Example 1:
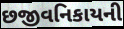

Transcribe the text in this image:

છજીવનિકાયની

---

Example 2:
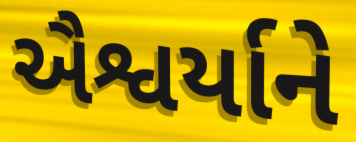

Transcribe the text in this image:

ઐશ્વર્યાને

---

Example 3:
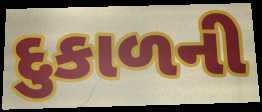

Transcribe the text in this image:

દુકાળની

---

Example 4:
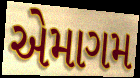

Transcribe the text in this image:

એમાગમ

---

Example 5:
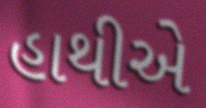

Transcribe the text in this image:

હાથીએ